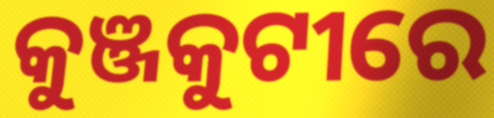
କୁଞ୍ଜକୁଟୀରେ